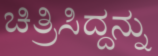
ಚಿತ್ರಿಸಿದ್ದನ್ನು